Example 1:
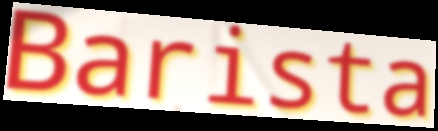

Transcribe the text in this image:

Barista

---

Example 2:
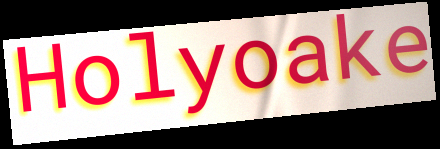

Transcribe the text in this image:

Holyoake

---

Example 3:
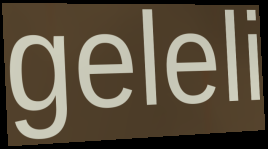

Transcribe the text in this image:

geleli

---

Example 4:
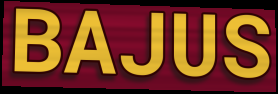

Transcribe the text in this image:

BAJUS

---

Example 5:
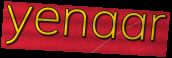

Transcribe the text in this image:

yenaar